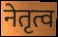
नेतृत्व